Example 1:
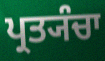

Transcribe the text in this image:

ਪ੍ਰਤ੍ਯੰਚਾ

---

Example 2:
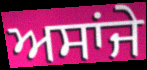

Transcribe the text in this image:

ਅਸਾਂਜੇ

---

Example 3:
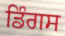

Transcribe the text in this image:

ਡਿੰਗਸ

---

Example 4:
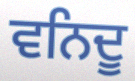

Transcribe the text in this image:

ਵਨਿਦੂ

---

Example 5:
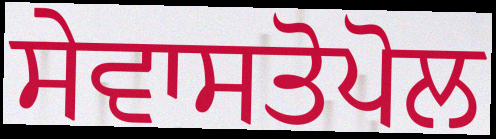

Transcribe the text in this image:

ਸੇਵਾਸਤੋਪੋਲ